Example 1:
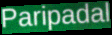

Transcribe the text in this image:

Paripadal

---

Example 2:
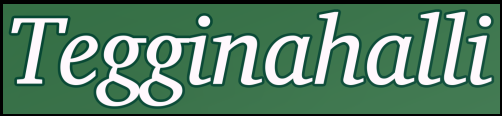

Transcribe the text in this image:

Tegginahalli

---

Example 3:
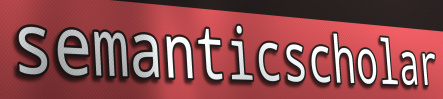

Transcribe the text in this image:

semanticscholar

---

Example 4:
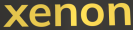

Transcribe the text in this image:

xenon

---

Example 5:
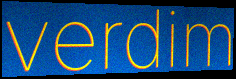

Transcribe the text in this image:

verdim